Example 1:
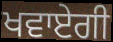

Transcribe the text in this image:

ਖਵਾਏਗੀ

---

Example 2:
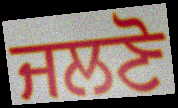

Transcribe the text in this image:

ਜਲਣੋ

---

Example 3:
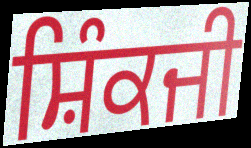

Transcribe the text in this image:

ਸ਼ਿੰਕਜੀ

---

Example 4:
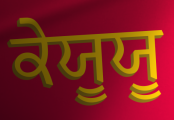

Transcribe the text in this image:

ਕੇਯੂਯੂ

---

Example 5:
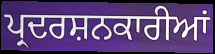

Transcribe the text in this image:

ਪ੍ਰਦਰਸ਼ਨਕਾਰੀਆਂ